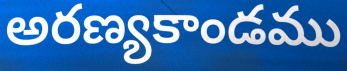
అరణ్యకాండము